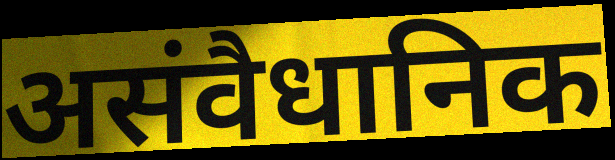
असंवैधानिक